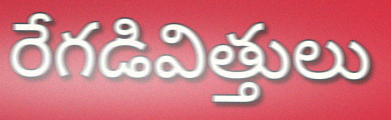
రేగడివిత్తులు